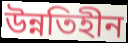
উন্নতিহীন